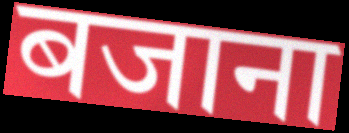
बजाना